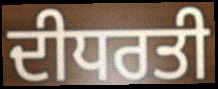
ਦੀਧਰਤੀ